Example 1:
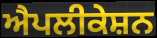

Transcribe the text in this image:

ਐਪਲੀਕੇਸ਼ਨ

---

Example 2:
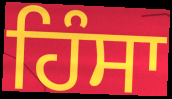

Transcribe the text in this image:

ਹਿੰਸਾ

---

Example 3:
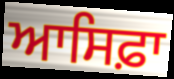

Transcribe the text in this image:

ਆਸਿਫ਼ਾ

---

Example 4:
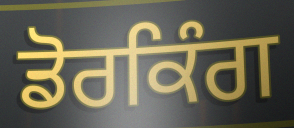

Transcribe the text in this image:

ਡੋਰਕਿੰਗ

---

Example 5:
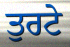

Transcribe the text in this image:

ਤੁਰਟੇ